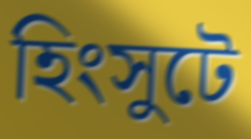
হিংসুটে